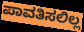
ಪಾವತಿಸಲಿಲ್ಲ